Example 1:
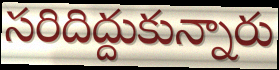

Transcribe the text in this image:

సరిదిద్దుకున్నారు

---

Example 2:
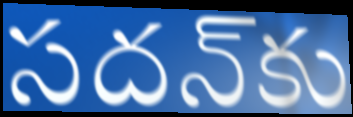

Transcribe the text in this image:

సదన్‌కు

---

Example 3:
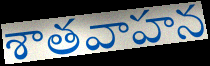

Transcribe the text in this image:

శాతవాహన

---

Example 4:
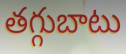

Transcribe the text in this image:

తగ్గుబాటు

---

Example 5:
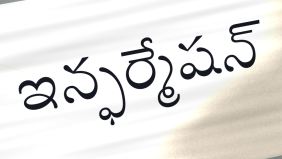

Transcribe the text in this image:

ఇన్ఫర్మేషన్